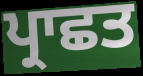
ਪ੍ਰਾਛਤ